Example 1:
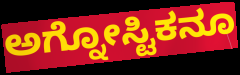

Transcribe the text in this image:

ಅಗ್ನೋಸ್ಟಿಕನೂ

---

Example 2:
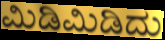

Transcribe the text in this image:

ಮಿಡಿಮಿಡಿದು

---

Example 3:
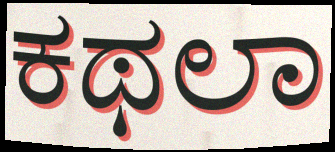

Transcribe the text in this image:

ಕಥಲಾ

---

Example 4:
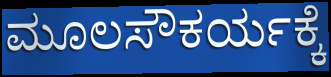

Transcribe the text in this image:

ಮೂಲಸೌಕರ್ಯಕ್ಕೆ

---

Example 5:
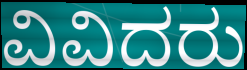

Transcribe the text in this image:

ವಿವಿದರು